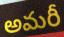
అమరీ